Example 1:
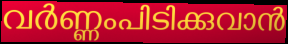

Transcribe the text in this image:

വർണ്ണംപിടിക്കുവാൻ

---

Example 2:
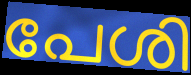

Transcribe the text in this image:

പേശി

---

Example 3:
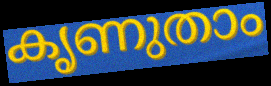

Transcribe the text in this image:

കൃണുതാം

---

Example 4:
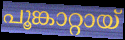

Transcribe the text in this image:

പൂങ്കാറ്റായ്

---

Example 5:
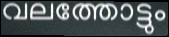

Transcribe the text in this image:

വലത്തോട്ടും